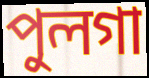
পুলগা